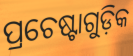
ପ୍ରଚେଷ୍ଟାଗୁଡ଼ିକ